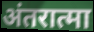
अंतरात्मा